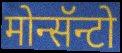
मोन्सॅन्टो